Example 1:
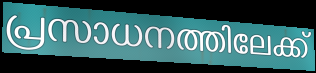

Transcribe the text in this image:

പ്രസാധനത്തിലേക്ക്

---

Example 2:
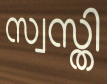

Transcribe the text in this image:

സ്വസ്തി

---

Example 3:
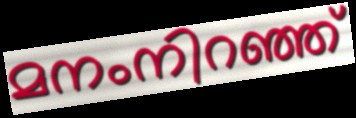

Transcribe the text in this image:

മനംനിറഞ്ഞ്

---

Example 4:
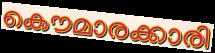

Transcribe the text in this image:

കൌമാരക്കാരി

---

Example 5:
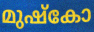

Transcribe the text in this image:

മുഷ്കോ